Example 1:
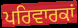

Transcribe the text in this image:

ਪਰਿਵਾਰਕਾਂ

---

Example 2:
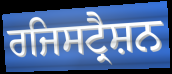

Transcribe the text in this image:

ਰਜਿਸਟ੍ਰੈਸ਼ਨ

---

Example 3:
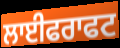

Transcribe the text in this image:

ਲਾਈਫਰਾਫਟ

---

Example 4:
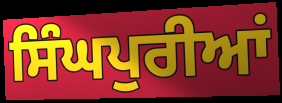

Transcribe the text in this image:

ਸਿੰਘਪੁਰੀਆਂ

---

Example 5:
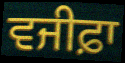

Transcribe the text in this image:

ਵਜੀਫ਼ਾ